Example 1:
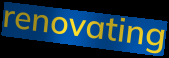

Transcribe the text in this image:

renovating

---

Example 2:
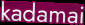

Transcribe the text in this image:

kadamai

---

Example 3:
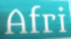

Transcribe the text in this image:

Afri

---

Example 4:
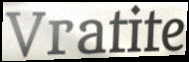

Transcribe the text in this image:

Vratite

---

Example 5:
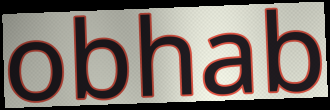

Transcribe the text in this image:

obhab